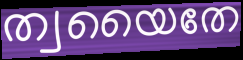
ത്വയൈതേ